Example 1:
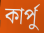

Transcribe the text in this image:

কার্পু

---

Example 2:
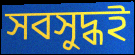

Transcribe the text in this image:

সবসুদ্ধই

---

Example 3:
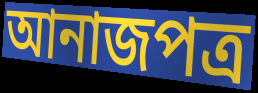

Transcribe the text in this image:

আনাজপত্র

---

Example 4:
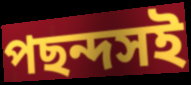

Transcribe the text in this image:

পছন্দসই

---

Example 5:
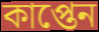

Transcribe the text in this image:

কাপ্তেন